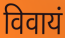
विवायं